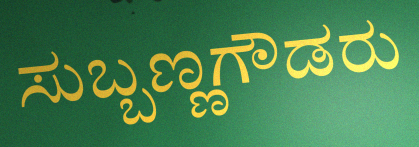
ಸುಬ್ಬಣ್ಣಗೌಡರು